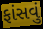
ફાંસવું